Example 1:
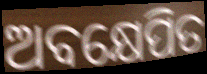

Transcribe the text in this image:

ଅବକ୍ଷେପିତ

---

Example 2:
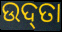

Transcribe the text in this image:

ଉଦ୍‌ତା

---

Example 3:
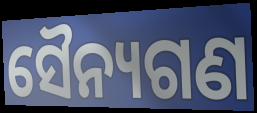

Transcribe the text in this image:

ସୈନ୍ୟଗଣ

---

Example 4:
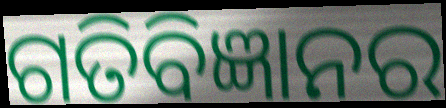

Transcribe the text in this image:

ଗତିବିଜ୍ଞାନର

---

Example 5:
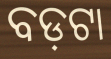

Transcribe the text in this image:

ବଡ଼ଟା